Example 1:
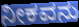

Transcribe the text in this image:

ನೀಕವನು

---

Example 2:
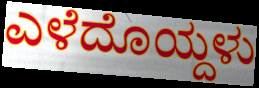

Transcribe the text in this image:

ಎಳೆದೊಯ್ದಳು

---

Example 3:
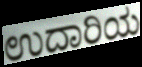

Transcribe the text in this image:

ಉದಾರಿಯ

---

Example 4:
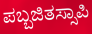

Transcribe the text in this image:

ಪಬ್ಬಜಿತಸ್ಸಾಪಿ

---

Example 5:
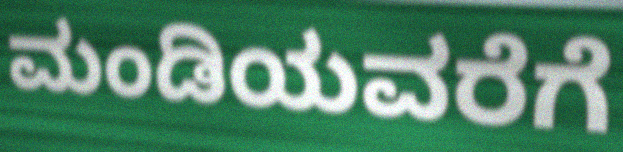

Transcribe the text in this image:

ಮಂಡಿಯವರೆಗೆ